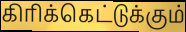
கிரிக்கெட்டுக்கும்